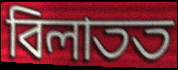
বিলাতত